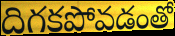
దిగకపోవడంతో